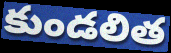
కుండలిత